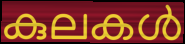
കുലകൾ